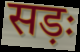
सड़ः